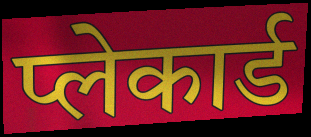
प्‍लेकार्ड